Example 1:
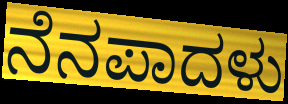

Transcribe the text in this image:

ನೆನಪಾದಳು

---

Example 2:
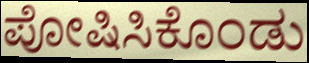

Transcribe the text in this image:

ಪೋಷಿಸಿಕೊಂಡು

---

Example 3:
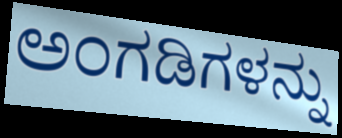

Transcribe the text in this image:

ಅಂಗಡಿಗಳನ್ನು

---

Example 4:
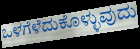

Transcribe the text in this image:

ಒಳಗೆಳೆದುಕೊಳ್ಳುವುದು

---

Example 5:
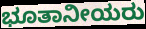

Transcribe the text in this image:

ಭೂತಾನೀಯರು